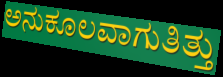
ಅನುಕೂಲವಾಗುತಿತ್ತು